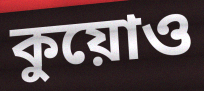
কুয়োও